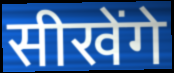
सीखेंगे